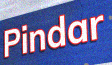
Pindar